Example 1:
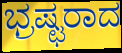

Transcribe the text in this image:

ಭ್ರಷ್ಟರಾದ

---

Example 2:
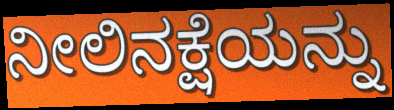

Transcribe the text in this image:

ನೀಲಿನಕ್ಷೆಯನ್ನು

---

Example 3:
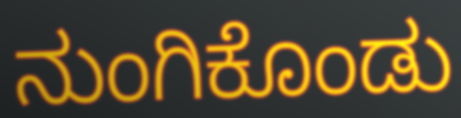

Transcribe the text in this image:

ನುಂಗಿಕೊಂಡು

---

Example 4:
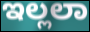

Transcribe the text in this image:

ಇಲ್ಲಲಾ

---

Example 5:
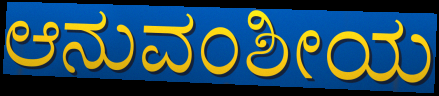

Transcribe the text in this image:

ಆನುವಂಶೀಯ